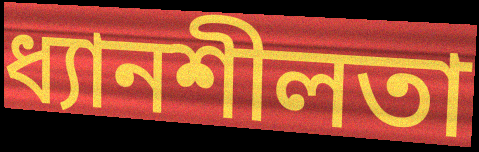
ধ্যানশীলতা